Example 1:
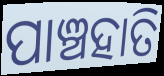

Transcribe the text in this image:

ପାଞ୍ଚହାତି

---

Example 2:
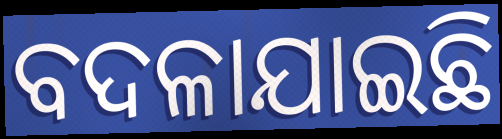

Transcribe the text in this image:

ବଦଳାଯାଇଛି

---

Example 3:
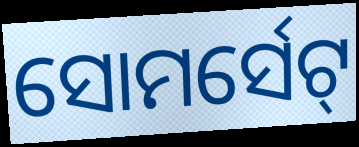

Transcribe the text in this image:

ସୋମର୍ସେଟ୍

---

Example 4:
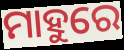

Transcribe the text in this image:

ମାହୁରେ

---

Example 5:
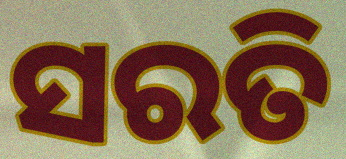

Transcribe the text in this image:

ସରତି